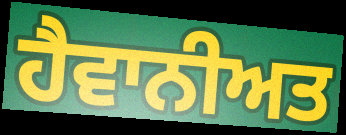
ਹੈਵਾਨੀਅਤ